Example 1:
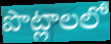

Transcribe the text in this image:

పొట్లాలలో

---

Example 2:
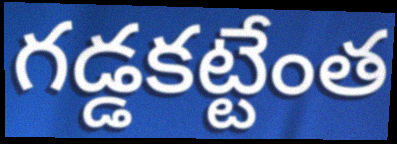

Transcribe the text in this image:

గడ్డకట్టేంత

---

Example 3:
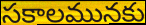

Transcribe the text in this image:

సకాలమునకు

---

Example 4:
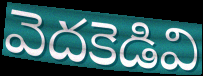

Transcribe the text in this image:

వెదకెడివి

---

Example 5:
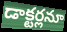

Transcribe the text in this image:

డాక్టర్లనూ